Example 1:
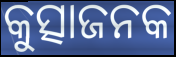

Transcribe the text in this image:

କୁତ୍ସାଜନକ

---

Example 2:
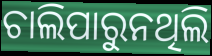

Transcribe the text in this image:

ଚାଲିପାରୁନଥିଲି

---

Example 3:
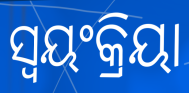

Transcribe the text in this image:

ସ୍ବୟଂକ୍ରିୟା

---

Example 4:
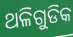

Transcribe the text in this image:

ଥଳିଗୁଡିକ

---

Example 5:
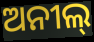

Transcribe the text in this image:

ଅନୀଲ୍